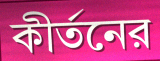
কীর্তনের